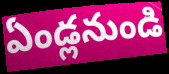
ఏండ్లనుండి